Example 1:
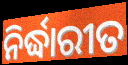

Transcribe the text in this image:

ନିର୍ଦ୍ଧାରୀତ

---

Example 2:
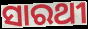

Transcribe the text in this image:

ସାରଥୀ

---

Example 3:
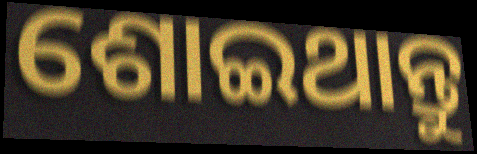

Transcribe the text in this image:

ଶୋଇଥାନ୍ତୁ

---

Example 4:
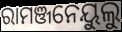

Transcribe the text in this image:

ରାମଞ୍ଜନେୟୁଲୁ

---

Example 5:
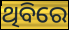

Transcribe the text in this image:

ଥିବିରେ